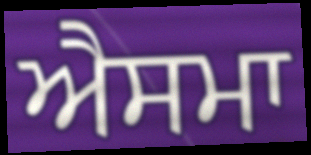
ਐਸਮਾ